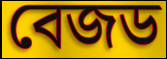
বেজড